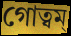
গোত্বম্